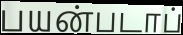
பயன்படாப்